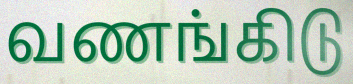
வணங்கிடு